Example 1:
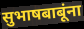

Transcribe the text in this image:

सुभाषबाबूंना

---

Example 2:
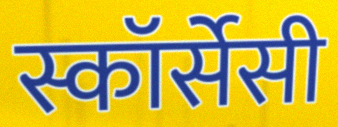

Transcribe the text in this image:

स्कॉर्सेसी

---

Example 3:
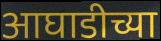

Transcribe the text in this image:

आघाडीच्या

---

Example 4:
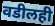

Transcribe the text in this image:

वडीलही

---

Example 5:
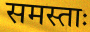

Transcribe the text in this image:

समस्ताः